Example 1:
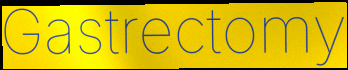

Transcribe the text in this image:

Gastrectomy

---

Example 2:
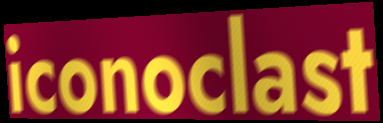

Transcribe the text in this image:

iconoclast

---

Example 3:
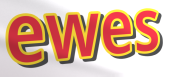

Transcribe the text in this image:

ewes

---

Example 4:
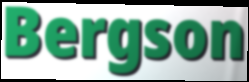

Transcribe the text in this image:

Bergson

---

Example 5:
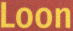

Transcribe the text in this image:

Loon